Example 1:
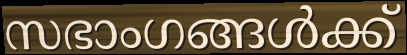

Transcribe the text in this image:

സഭാംഗങ്ങൾക്ക്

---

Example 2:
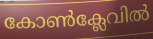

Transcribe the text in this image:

കോൺക്ലേവിൽ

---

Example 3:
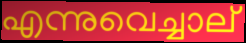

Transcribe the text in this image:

എന്നുവെച്ചാല്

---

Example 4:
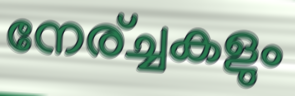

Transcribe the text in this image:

നേര്ച്ചകളും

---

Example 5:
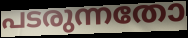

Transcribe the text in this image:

പടരുന്നതോ